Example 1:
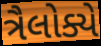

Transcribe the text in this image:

ત્રૈલોક્યે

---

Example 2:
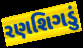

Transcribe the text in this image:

રણશિગડું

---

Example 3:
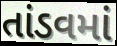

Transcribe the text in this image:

તાંડવમાં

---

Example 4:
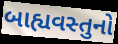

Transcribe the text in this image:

બાહ્યવસ્તુનો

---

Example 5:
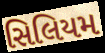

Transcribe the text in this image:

સિલિયમ